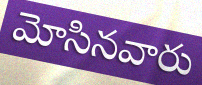
మోసినవారు